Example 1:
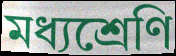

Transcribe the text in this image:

মধ্যশ্রেণি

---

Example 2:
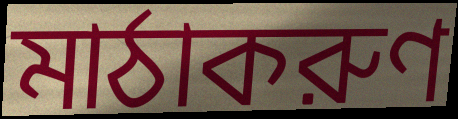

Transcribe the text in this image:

মাঠাকরুণ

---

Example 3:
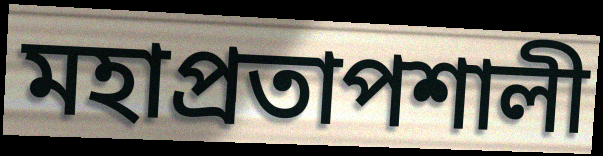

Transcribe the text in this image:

মহাপ্রতাপশালী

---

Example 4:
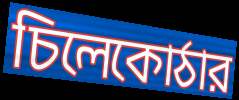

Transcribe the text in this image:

চিলেকোঠার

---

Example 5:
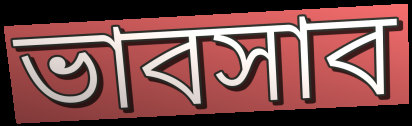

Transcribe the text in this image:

ভাবসাব